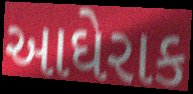
આઘેરાક